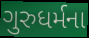
ગુરુધર્મના